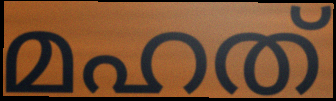
മഹത്